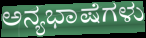
ಅನ್ಯಭಾಷೆಗಳು